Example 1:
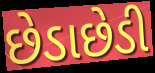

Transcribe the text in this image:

છેડાછેડી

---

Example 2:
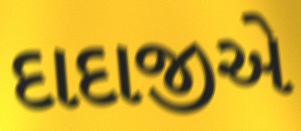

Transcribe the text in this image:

દાદાજીએ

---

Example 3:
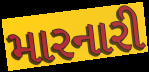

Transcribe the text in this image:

મારનારી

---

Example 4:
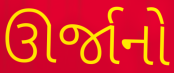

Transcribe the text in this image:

ઊર્જાનો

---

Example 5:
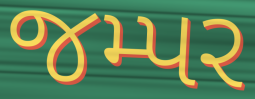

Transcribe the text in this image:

જમ્પર